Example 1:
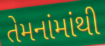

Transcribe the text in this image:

તેમનાંમાંથી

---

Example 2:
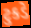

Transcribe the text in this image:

ટુકડે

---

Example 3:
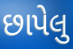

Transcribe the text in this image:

છાપેલુ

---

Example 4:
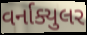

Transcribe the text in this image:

વર્નાક્યુલર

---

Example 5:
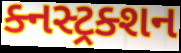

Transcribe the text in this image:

ક્નસ્ટ્રક્શન